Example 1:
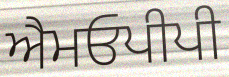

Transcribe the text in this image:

ਐਮਓਪੀਪੀ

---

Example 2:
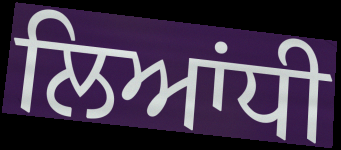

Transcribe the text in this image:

ਲਿਆਂਧੀ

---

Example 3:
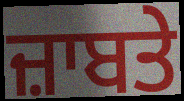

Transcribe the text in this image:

ਜ਼ਾਬਤੇ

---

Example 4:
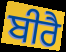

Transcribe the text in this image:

ਬੀਰੈ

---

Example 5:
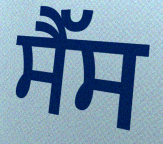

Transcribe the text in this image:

ਸੈੱਸ